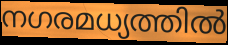
നഗരമധ്യത്തിൽ